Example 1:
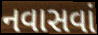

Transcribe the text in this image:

નવાસવાં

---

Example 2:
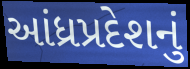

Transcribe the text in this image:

આંધ્રપ્રદેશનું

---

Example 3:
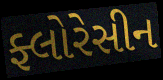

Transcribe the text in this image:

ફ્લોરેસીન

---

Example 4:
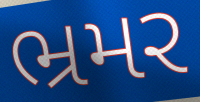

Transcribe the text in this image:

ભ્રમર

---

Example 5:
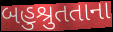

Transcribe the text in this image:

બહુશ્રુતતાના